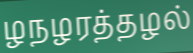
ழநழரத்தழல்